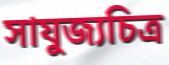
সাযুজ্যচিত্র